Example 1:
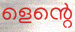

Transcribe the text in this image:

ളെന്റെ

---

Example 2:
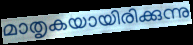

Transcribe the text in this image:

മാതൃകയായിരിക്കുന്നു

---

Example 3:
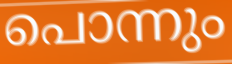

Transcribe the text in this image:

പൊന്നും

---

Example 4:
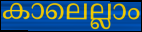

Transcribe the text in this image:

കാലെല്ലാം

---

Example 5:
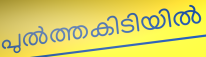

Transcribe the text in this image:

പുൽത്തകിടിയിൽ